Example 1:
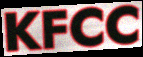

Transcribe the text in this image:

KFCC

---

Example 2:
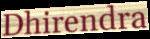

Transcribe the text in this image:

Dhirendra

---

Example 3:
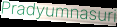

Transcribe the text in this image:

Pradyumnasuri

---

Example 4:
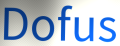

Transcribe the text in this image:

Dofus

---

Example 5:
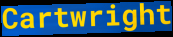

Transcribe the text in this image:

Cartwright